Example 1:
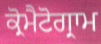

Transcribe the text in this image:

ਕ੍ਰੋਮੈਟੋਗ੍ਰਾਮ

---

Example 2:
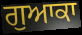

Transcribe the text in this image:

ਗੁਆਕਾ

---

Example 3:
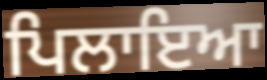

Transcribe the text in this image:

ਪਿਲਾਇਆ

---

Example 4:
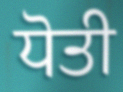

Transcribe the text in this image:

ਧੋਤੀ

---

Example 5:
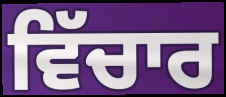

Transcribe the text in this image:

ਵਿੱਚਾਰ